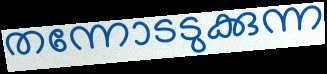
തന്നോടടുക്കുന്ന